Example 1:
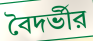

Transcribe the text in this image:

বৈদর্ভীর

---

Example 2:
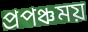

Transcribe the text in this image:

প্রপঞ্চময়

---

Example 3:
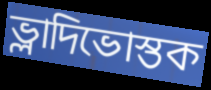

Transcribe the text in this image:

ভ্লাদিভোস্তক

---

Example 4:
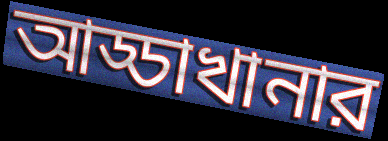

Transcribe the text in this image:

আড্ডাখানার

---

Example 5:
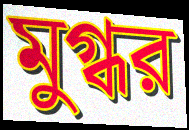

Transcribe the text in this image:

মুগ্ধর